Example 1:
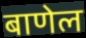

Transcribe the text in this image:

बाणेल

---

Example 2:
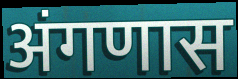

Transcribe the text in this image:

अंगणास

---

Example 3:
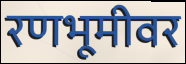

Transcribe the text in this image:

रणभूमीवर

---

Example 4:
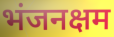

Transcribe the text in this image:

भंजनक्षम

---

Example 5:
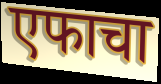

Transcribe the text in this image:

एफाचा